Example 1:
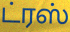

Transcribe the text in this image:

ட்ரஸ்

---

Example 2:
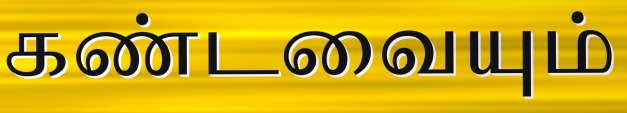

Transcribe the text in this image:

கண்டவையும்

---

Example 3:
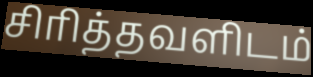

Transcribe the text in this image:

சிரித்தவளிடம்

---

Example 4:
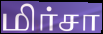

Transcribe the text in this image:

மிர்சா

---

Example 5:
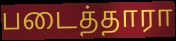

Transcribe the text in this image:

படைத்தாரா